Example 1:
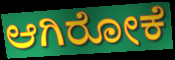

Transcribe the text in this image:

ಆಗಿರೋಕೆ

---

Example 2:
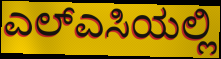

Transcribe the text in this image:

ಎಲ್ಎಸಿಯಲ್ಲಿ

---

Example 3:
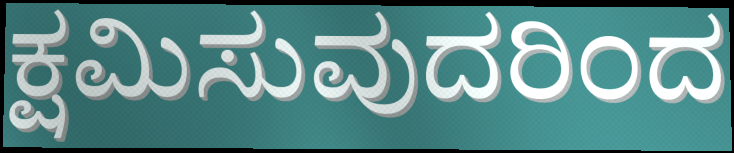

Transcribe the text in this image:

ಕ್ಷಮಿಸುವುದರಿಂದ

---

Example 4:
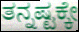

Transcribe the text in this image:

ತನ್ನಷ್ಟಕ್ಕೇ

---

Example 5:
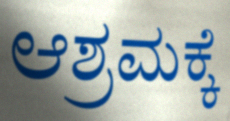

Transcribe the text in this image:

ಆಶ್ರಮಕ್ಕೆ